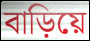
বাড়িয়ে